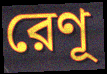
রেণূ